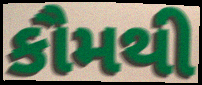
કૌમથી